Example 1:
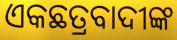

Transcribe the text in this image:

ଏକଛତ୍ରବାଦୀଙ୍କ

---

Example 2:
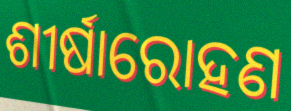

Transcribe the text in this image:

ଶୀର୍ଷାରୋହଣ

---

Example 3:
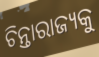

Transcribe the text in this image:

ଚିନ୍ତାରାଜ୍ୟକୁ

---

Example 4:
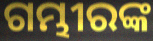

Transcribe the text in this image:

ଗମ୍ଭୀରଙ୍କ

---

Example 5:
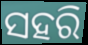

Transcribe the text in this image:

ସହରି